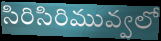
సిరిసిరిమువ్వలో